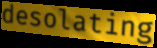
desolating